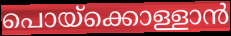
പൊയ്ക്കൊള്ളാൻ